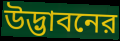
উদ্ভাবনের